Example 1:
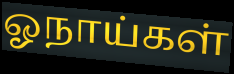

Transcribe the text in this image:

ஓநாய்கள்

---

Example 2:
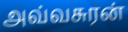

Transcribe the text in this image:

அவ்வசுரன்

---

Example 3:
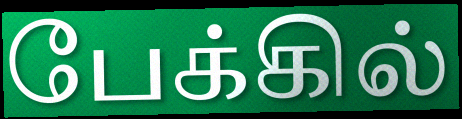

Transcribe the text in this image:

பேக்கில்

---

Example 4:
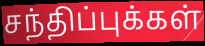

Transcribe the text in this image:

சந்திப்புக்கள்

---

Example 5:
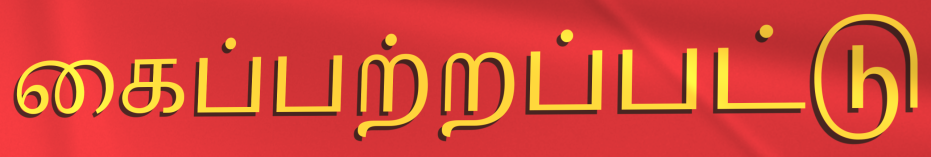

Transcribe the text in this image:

கைப்பற்றப்பட்டு